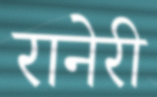
रानेरी